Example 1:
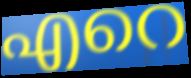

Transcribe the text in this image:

എറെ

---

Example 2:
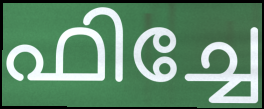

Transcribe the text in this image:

ഫിച്ചേ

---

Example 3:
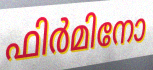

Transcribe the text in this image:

ഫിർമിനോ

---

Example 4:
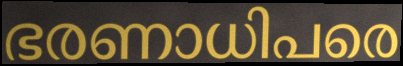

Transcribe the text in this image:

ഭരണാധിപരെ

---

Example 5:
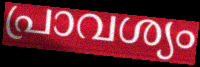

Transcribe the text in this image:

പ്രാവശ്യം